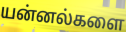
யன்னல்களை